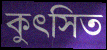
কুৎসিত